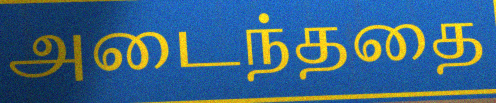
அடைந்ததை